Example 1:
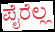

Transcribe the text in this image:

ಪೈರೆಲ್ಲ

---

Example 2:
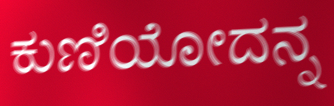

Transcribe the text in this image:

ಕುಣಿಯೋದನ್ನ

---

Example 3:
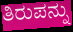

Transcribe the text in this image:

ತಿರುಪನ್ನು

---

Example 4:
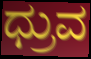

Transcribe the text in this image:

ಧ್ರುವ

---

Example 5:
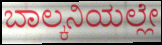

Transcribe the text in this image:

ಬಾಲ್ಕನಿಯಲ್ಲೇ